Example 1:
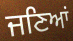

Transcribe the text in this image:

ਜਣਿਆਂ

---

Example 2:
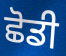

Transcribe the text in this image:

ਛੋਡੀ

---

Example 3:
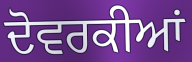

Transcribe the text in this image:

ਦੋਵਰਕੀਆਂ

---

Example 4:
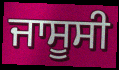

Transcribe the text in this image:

ਜਾਸੂਸੀ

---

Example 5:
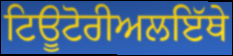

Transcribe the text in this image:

ਟਿਊਟੋਰੀਅਲਇੱਥੇ